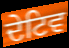
ਦੇਟਿਵ